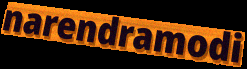
narendramodi